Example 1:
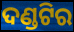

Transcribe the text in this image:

ଦଣ୍ଡଟିର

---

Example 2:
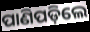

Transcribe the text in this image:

ପାଣିପଡ଼ିଲେ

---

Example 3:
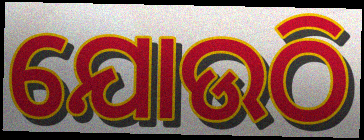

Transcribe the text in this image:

ଯୋଉଠି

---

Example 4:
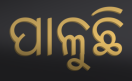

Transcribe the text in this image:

ପାଳୁଛି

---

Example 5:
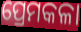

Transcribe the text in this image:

ପ୍ରେମକଳା